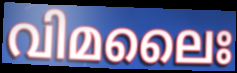
വിമലൈഃ